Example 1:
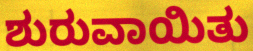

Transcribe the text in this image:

ಶುರುವಾಯಿತು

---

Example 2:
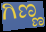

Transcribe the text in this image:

ಗಿಣ್ಣ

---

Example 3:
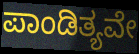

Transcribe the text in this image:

ಪಾಂಡಿತ್ಯವೇ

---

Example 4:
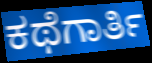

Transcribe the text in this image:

ಕಥೆಗಾರ್ತಿ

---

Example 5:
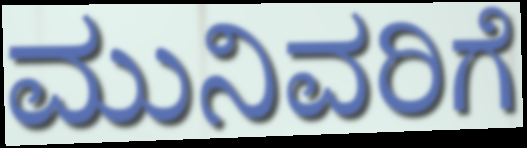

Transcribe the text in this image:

ಮುನಿವರಿಗೆ